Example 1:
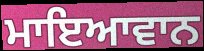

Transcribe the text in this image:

ਮਾਇਆਵਾਨ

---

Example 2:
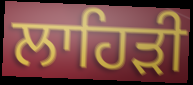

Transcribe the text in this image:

ਲਾਹਿੜੀ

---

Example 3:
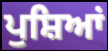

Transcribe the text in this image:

ਪੁਸ਼ਿਆਂ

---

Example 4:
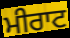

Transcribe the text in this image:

ਮੀਰਾਟ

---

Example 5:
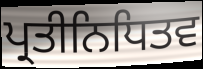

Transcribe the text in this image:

ਪ੍ਰਤੀਨਿਧਿਤਵ